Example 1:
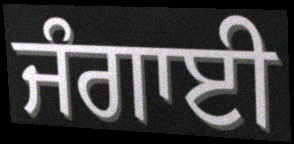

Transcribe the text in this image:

ਜੰਗਾਈ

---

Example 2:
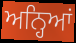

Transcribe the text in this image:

ਅਨ੍ਹਿਆਂ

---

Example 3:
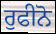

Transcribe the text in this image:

ਰੁਫੀਨੋ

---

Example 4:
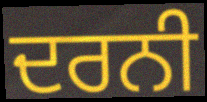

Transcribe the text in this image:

ਦਰਨੀ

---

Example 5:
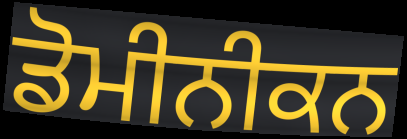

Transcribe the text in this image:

ਡੋਮੀਨੀਕਨ